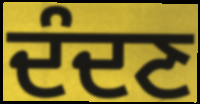
ਦੰਦਣ